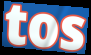
tos